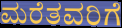
ಮರೆತವರಿಗೆ